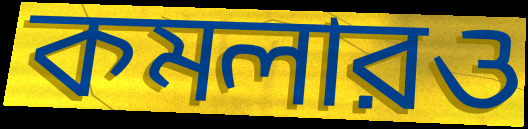
কমলারও